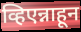
व्हिएन्नाहून